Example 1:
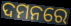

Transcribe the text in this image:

ଦମନରେ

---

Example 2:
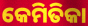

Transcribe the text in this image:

କେମିତିକା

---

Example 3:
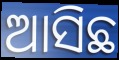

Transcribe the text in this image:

ଆସିଛ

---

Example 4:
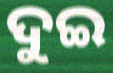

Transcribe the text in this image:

ଦୁଇ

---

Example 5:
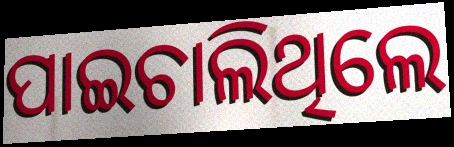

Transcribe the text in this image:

ପାଇଚାଲିଥିଲେ